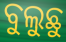
ବୁଲୁଛୁ